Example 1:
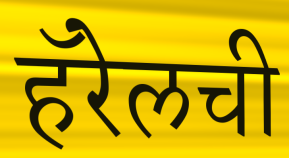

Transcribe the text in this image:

हॅरेलची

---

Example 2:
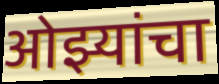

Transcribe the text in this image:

ओझ्यांचा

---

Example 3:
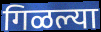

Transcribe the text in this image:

गिळल्या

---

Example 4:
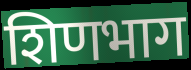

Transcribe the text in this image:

शिणभाग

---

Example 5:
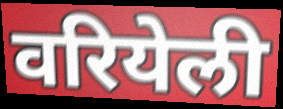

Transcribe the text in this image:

वरियेली